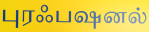
புரஃபஷனல்